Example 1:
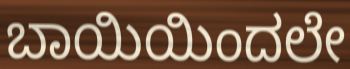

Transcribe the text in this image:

ಬಾಯಿಯಿಂದಲೇ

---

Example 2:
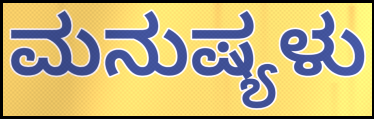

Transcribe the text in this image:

ಮನುಷ್ಯಳು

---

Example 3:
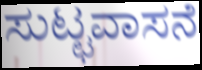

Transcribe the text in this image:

ಸುಟ್ಟವಾಸನೆ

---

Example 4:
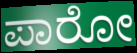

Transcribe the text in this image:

ಪಾರೋ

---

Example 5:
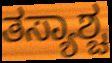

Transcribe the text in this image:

ತಸ್ಯಾಶ್ಚ